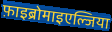
फ़ाइब्रोमाइएल्जिया